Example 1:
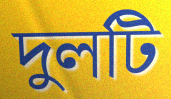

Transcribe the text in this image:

দুলটি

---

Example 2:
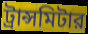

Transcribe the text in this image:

ট্রান্সমিটার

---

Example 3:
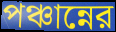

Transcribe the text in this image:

পঞ্চান্নের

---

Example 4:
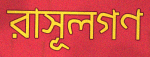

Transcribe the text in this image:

রাসূলগণ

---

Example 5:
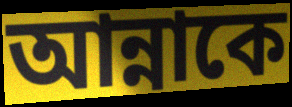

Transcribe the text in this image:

আন্নাকে